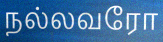
நல்லவரோ